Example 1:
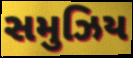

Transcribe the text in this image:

સમુઝિય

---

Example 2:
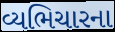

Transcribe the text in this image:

વ્યભિચારના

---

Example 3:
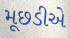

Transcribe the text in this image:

મૂછડીએ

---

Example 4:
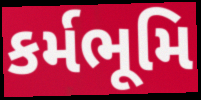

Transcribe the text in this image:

કર્મભૂમિ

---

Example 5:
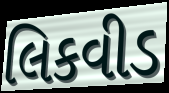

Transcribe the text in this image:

લિકવીડ